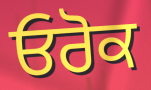
ਓਰੋਕ